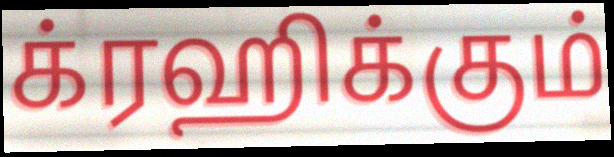
க்ரஹிக்கும்